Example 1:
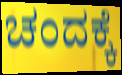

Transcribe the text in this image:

ಚಂದಕ್ಕೆ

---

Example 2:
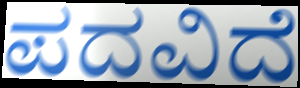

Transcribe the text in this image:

ಪದವಿದೆ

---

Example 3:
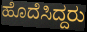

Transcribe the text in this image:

ಹೊದೆಸಿದ್ದರು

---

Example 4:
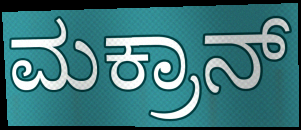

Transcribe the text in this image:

ಮಕ್ರಾನ್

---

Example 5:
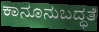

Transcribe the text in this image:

ಕಾನೂನುಬದ್ಧತೆ